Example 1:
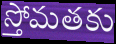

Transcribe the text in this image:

స్తోమతకు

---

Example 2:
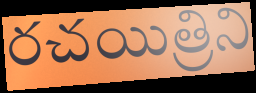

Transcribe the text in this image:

రచయిత్రిని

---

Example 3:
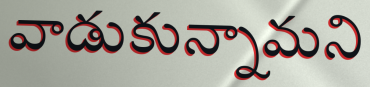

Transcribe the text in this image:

వాడుకున్నామని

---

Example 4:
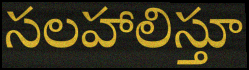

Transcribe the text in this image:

సలహాలిస్తూ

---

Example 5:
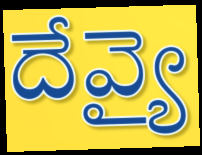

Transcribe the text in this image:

దేవ్యై